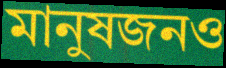
মানুষজনও